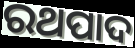
ରଥପାଦ